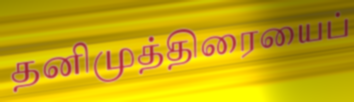
தனிமுத்திரையைப்